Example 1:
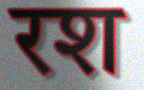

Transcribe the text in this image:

रश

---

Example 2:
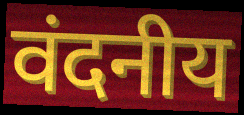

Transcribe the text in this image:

वंदनीय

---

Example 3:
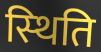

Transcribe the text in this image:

स्‍थिति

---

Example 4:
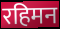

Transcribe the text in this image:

रहिमन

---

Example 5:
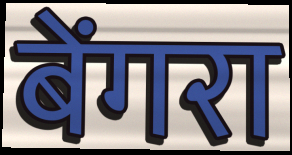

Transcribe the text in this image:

बेंगरा